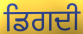
ਡਿਗਦੀ